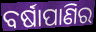
ବର୍ଷାପାଣିର